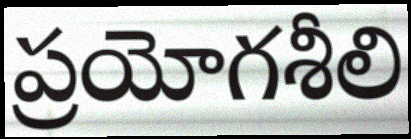
ప్రయోగశీలి